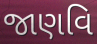
જાણવિ